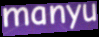
manyu